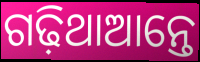
ଗଢ଼ିଥାଆନ୍ତେ